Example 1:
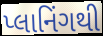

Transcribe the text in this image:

પ્લાનિંગથી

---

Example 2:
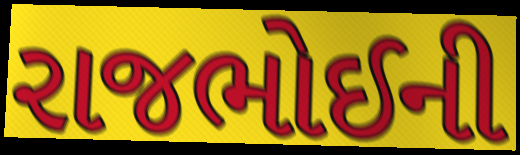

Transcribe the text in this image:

રાજભોઈની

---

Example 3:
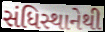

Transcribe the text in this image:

સંધિસ્થાનેથી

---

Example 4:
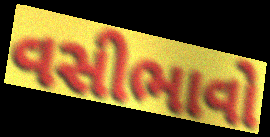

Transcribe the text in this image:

વસીભાવો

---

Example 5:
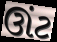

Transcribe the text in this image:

ઊંટ